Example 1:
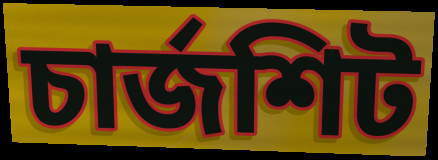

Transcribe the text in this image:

চার্জশিট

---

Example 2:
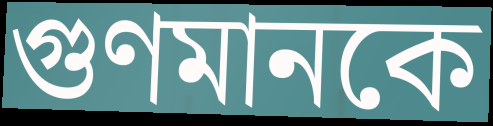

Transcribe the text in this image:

গুণমানকে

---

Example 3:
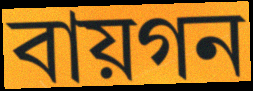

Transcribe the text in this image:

বায়গন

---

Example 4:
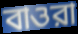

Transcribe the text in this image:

বাওরা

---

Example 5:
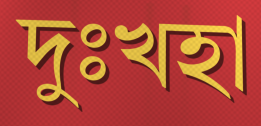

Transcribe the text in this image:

দুঃখহা